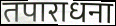
तपाराधना